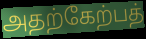
அதற்கேற்பத்